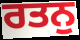
ਰਤਨੁ